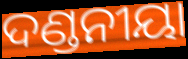
ଦଣ୍ଡନୀୟା